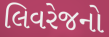
લિવરેજનો